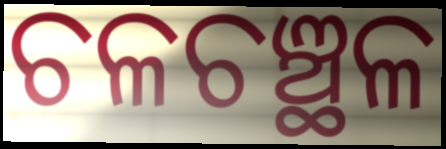
ଚଳଚଞ୍ଛଳ